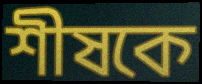
শীষকে